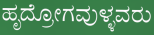
ಹೃದ್ರೋಗವುಳ್ಳವರು